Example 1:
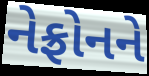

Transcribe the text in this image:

નેફ્રોનને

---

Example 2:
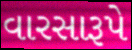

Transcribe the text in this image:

વારસારૂપે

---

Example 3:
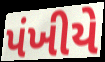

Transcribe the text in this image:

પંખીયે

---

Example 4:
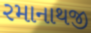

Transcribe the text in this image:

રમાનાથજી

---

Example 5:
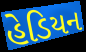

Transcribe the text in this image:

હેડિયન